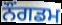
ਨੌਂਗਡਮ